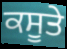
ਕਸੂਤੇ